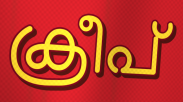
ക്രീപ്